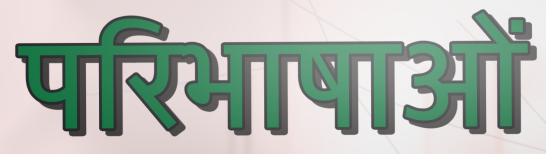
परिभाषाओं